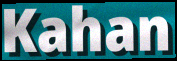
Kahan